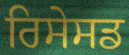
ਰਿਸੇਸਡ